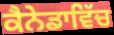
ਕੈਨੇਡਾਵਿੱਚ